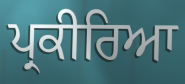
ਪ੍ਰਕੀਰਿਆ